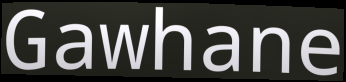
Gawhane